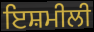
ਇਸ਼ਮੀਲੀ